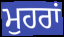
ਮੁਹਰਾਂ